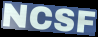
NCSF